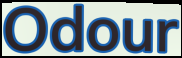
Odour